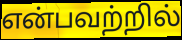
என்பவற்றில்